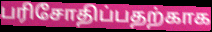
பரிசோதிப்பதற்காக